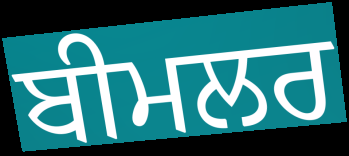
ਬੀਮਲਰ